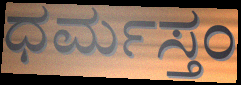
ಧರ್ಮಸ್ತಂ